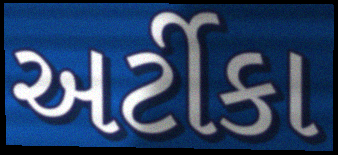
અર્ટીકા